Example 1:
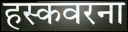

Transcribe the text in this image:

हस्कवरना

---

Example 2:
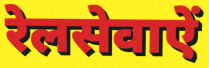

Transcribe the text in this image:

रेलसेवाऐं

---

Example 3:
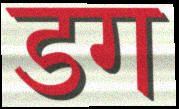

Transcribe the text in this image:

डग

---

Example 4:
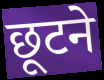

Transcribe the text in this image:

छूटने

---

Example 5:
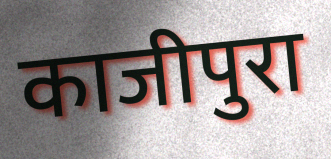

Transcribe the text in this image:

काजीपुरा